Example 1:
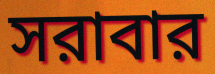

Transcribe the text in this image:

সরাবার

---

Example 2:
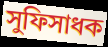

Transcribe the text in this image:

সুফিসাধক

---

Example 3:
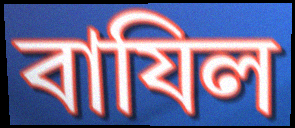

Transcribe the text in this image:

বাযিল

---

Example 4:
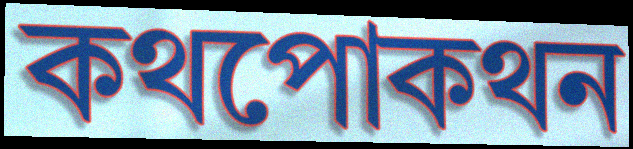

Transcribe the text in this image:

কথপোকথন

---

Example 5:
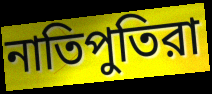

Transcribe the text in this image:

নাতিপুতিরা